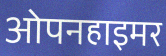
ओपनहाइमर